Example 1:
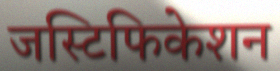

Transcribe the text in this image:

जस्टिफिकेशन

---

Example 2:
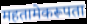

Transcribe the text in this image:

महतामेकरूपता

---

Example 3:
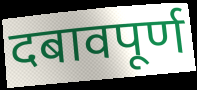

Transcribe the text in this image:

दबावपूर्ण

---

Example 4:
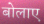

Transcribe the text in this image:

बोलाए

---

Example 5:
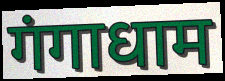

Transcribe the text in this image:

गंगाधाम